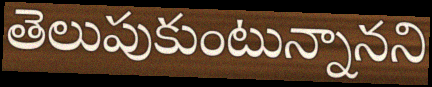
తెలుపుకుంటున్నానని